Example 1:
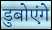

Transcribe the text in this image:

डुबोएंगे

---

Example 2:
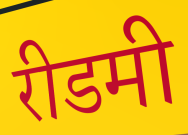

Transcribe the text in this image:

रीडमी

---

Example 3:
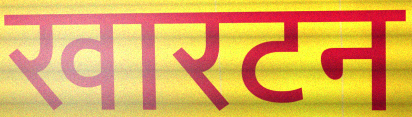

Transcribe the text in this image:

खारटन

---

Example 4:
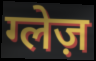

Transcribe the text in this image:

ग्लेज़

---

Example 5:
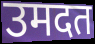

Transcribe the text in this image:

उमदत